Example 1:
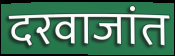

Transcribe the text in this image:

दरवाजांत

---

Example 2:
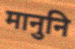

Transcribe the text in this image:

मानुनि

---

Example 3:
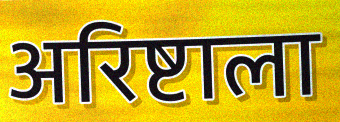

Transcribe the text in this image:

अरिष्टाला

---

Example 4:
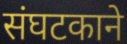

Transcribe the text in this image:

संघटकाने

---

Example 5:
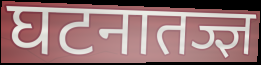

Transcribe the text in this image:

घटनातज्ज्ञ